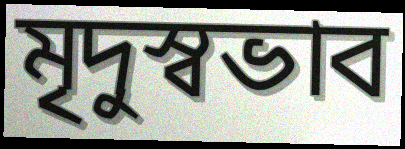
মৃদুস্বভাব